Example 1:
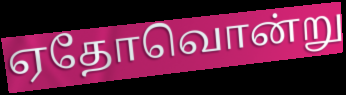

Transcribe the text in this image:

ஏதோவொன்று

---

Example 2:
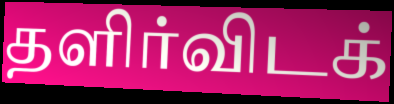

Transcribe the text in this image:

தளிர்விடக்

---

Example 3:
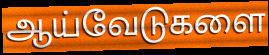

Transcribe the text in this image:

ஆய்வேடுகளை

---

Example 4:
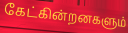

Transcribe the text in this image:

கேட்கின்றனகளும்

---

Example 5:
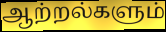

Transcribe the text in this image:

ஆற்றல்களும்